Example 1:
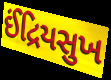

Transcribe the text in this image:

ઈંદ્રિયસુખ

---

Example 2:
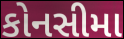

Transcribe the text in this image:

કોનસીમા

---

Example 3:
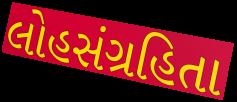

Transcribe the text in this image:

લોહસંગ્રહિતા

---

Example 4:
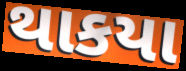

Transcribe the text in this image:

થાકયા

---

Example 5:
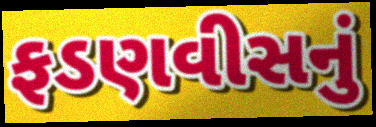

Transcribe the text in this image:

ફડણવીસનું